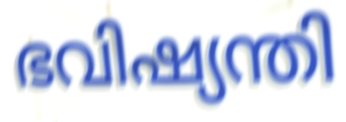
ഭവിഷ്യന്തി